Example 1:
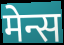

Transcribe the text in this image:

मेन्स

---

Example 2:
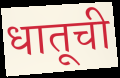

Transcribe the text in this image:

धातूची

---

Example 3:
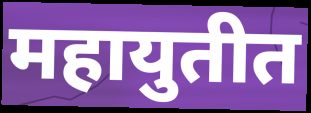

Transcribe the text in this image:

महायुतीत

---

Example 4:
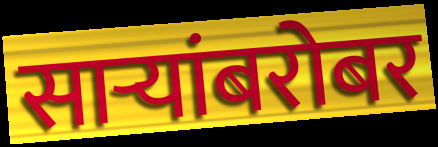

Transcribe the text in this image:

साऱ्यांबरोबर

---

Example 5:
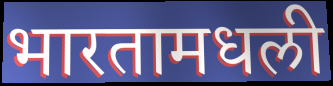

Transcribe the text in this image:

भारतामधली